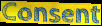
Consent